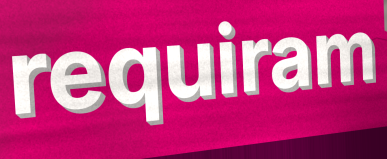
requiram